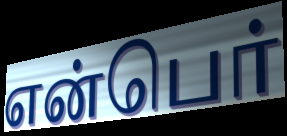
என்பெர்